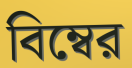
বিম্বের